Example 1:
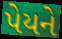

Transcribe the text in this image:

પેયને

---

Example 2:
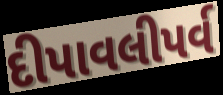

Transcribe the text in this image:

દીપાવલીપર્વ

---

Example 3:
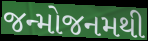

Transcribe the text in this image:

જન્મોજનમથી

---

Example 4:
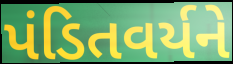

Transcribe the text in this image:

પંડિતવર્યને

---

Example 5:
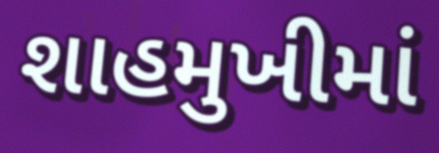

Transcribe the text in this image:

શાહમુખીમાં